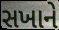
સખાને